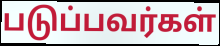
படுப்பவர்கள்